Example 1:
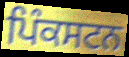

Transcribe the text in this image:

ਪਿੰਕਸਟਨ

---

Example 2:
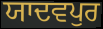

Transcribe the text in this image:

ਯਾਦਵਪੁਰ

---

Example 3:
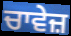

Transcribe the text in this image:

ਚਾਵੇਜ਼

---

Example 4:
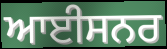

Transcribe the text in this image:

ਆਈਸਨਰ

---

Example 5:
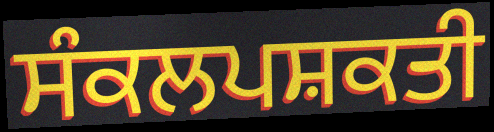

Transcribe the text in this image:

ਸੰਕਲਪਸ਼ਕਤੀ